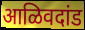
आळिवदांड